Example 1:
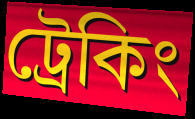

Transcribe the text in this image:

ট্রেকিং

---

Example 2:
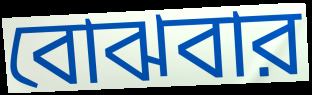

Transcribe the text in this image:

বোঝবার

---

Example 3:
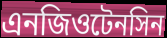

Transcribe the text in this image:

এনজিওটেনসিন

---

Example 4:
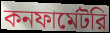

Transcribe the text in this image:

কনফার্মেটরি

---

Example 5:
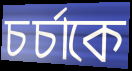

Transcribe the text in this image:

চর্চাকে